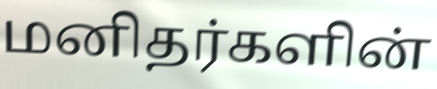
மனிதர்களின்